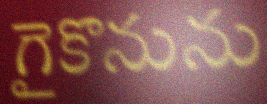
గైకొనును